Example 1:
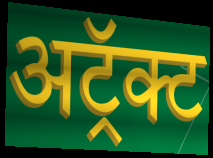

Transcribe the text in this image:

अट्रॅक्ट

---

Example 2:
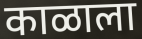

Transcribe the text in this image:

काळाला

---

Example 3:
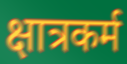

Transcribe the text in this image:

क्षात्रकर्म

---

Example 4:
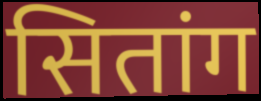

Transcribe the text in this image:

सितांग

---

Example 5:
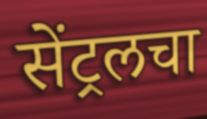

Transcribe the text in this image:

सेंट्रलचा